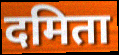
दमिता